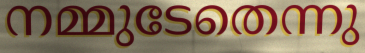
നമ്മുടേതെന്നു